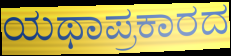
ಯಥಾಪ್ರಕಾರದ